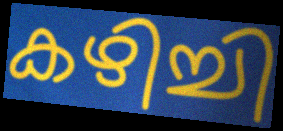
കഴിച്ചി